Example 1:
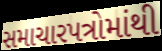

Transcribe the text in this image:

સમાચારપત્રોમાંથી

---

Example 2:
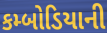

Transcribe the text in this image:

કમ્બોડિયાની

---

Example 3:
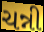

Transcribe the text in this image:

ચન્ની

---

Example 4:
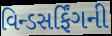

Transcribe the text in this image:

વિન્ડસર્ફિંગની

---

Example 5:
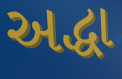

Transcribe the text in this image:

અદ્ધા